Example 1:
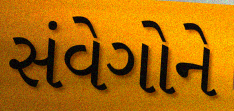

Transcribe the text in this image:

સંવેગોને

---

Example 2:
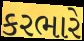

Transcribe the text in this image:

કરભારે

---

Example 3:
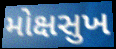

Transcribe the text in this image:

મોક્ષસુખ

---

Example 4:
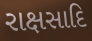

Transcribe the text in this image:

રાક્ષસાદિ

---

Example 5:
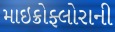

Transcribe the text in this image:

માઇક્રોફ્લોરાની